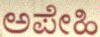
ಅಪೇಹಿ